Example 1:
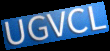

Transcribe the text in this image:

UGVCL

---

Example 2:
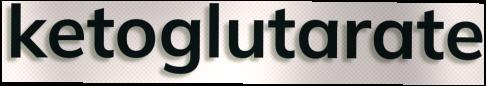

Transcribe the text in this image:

ketoglutarate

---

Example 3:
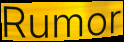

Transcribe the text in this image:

Rumor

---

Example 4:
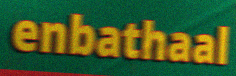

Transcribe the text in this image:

enbathaal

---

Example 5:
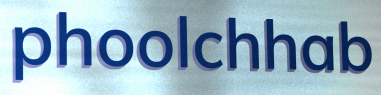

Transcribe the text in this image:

phoolchhab